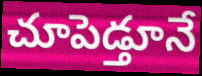
చూపెడ్తూనే